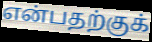
என்பதற்குக்